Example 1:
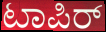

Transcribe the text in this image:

ಟಾಪಿರ್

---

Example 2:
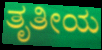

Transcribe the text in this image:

ತೃತೀಯ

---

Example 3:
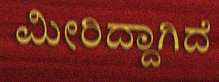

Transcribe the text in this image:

ಮೀರಿದ್ದಾಗಿದೆ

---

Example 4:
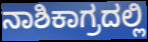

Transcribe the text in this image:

ನಾಶಿಕಾಗ್ರದಲ್ಲಿ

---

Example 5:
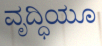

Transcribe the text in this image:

ವೃದ್ಧಿಯೂ